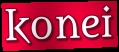
konei